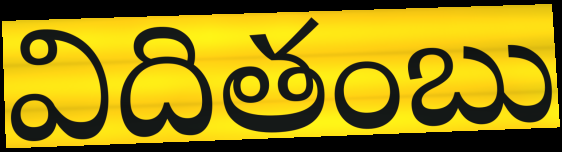
విదితంబు